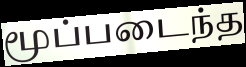
மூப்படைந்த